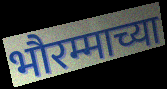
भौरम्माच्या